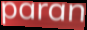
paran